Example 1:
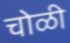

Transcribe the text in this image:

चोळी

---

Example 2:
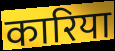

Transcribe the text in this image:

कारिया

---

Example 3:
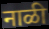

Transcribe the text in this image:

नाळी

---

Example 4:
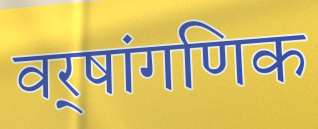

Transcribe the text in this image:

वर्षांगणिक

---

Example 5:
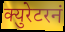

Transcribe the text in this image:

क्युरेटरनं